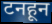
टनहून